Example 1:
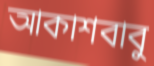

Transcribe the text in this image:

আকাশবাবু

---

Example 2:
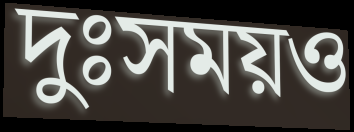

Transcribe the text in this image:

দুঃসময়ও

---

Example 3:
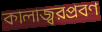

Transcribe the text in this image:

কালাজ্বরপ্রবণ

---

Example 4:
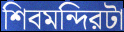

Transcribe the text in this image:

শিবমন্দিরটা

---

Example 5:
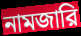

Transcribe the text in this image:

নামজারি